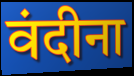
वंदीना